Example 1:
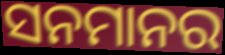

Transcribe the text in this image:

ସନମାନର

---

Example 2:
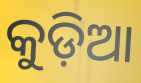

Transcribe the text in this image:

କୁଡ଼ିଆ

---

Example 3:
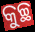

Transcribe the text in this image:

କୁଚ୍ଛ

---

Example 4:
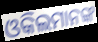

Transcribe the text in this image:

ଓକିଲମାନଙ୍କ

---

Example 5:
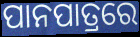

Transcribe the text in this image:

ପାନପାତ୍ରରେ